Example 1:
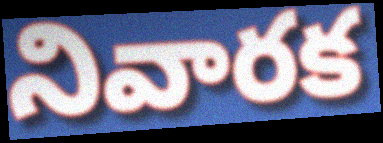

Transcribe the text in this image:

నివారక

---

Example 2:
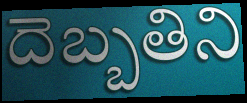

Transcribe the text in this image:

దెబ్బతిని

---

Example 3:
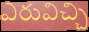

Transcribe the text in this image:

ఎరువిచ్చి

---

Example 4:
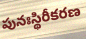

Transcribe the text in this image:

పునఃస్థిరీకరణ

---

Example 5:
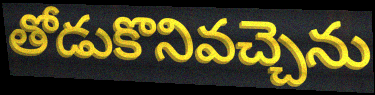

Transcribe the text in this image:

తోడుకొనివచ్చెను